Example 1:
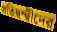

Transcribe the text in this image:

প্রতিদ্বন্দ্বীদের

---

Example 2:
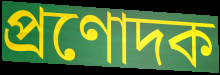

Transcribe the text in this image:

প্রণোদক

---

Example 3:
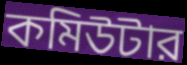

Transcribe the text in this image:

কমিউটার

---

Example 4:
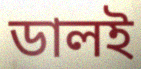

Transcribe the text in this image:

ডালই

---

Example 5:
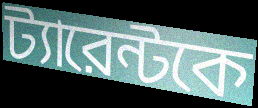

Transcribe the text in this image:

ট্যারেন্টকে